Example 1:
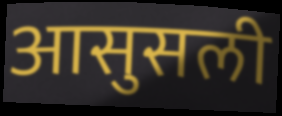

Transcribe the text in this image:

आसुसली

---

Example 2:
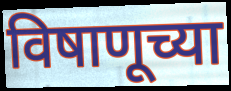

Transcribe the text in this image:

विषाणूच्या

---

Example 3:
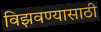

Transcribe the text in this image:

विझवण्यासाठी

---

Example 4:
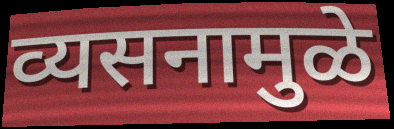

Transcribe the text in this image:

व्यसनामुळे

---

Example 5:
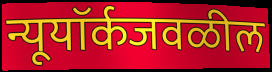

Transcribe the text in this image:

न्यूयॉर्कजवळील